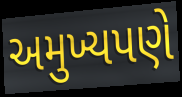
અમુખ્યપણે